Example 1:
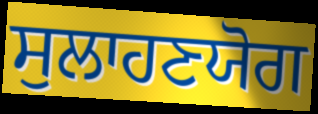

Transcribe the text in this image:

ਸੁਲਾਹਣਯੋਗ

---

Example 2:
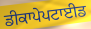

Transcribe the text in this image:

ਡੀਕਾਪੇਪਟਾਈਡ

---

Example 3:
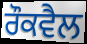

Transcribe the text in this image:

ਰੌਕਵੈਲ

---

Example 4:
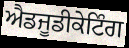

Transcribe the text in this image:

ਐਡਜੂਡੀਕੇਟਿੰਗ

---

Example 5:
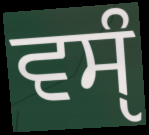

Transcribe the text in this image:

ਵਸੵੰ